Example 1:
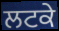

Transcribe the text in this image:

ਲਟਕੇ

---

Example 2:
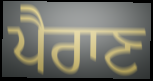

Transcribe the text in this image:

ਪੈਰਾਣ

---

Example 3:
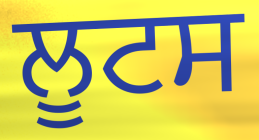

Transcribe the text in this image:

ਲੂਟਸ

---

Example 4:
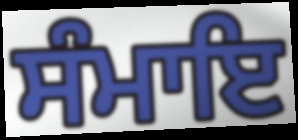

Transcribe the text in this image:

ਸੰਮਾਇ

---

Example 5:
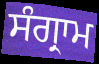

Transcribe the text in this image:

ਸੰਗ੍ਰਾਮ